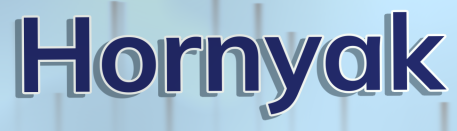
Hornyak